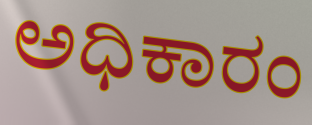
ಅಧಿಕಾರಂ